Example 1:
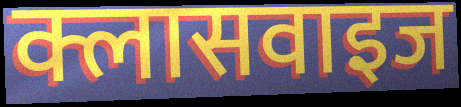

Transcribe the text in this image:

क्लासवाइज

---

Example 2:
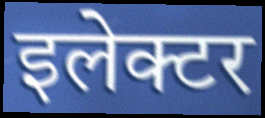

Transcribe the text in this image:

इलेक्टर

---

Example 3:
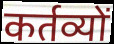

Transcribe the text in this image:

कर्तव्यों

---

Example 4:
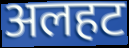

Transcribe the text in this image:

अलहट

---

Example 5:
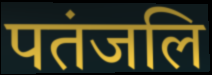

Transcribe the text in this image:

पतंजलि